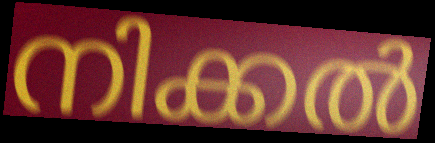
നിക്കൽ